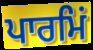
ਪਾਰਮਿਂ